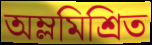
অম্লমিশ্রিত